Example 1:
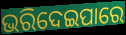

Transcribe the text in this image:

ଭରିଦେଇପାରେ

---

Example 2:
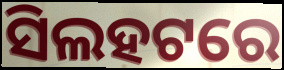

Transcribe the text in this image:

ସିଲହଟରେ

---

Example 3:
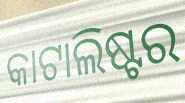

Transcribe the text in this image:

କାଟାଲିଷ୍ଟର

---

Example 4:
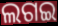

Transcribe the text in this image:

ଲଗଇ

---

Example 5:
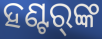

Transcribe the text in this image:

ହଣ୍ଟର୍‌ଙ୍କ